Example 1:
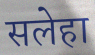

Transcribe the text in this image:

सलेहा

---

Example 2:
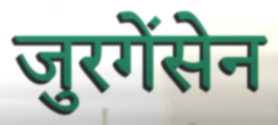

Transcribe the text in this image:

जुरगेंसेन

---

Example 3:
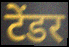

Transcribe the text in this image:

टेंडर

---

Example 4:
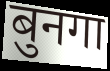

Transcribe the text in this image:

बुनगा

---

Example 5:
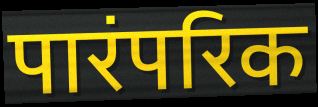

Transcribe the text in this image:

पारंपरिक